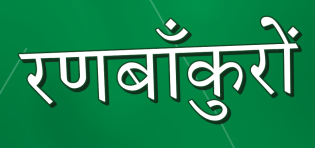
रणबाँकुरों